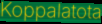
Koppalatota